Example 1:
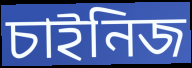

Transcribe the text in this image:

চাইনিজ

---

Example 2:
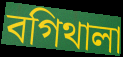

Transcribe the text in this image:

বগিথালা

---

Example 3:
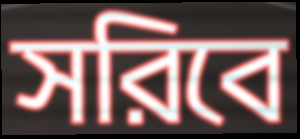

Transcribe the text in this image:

সরিবে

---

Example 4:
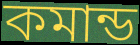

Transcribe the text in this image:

কমান্ড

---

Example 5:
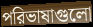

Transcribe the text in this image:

পরিভাষাগুলো